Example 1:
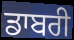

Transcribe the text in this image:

ਡਾਬਰੀ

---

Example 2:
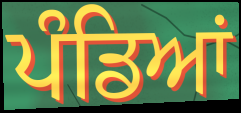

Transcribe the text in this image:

ਪੰਡਿਆਂ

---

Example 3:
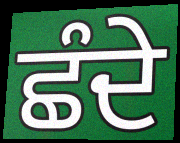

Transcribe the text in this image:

ਛੰਦੇ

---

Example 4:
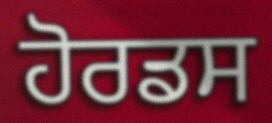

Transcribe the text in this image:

ਹੋਰਡਸ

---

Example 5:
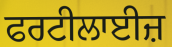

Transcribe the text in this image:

ਫਰਟੀਲਾਈਜ਼